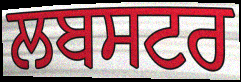
ਲਬਸਟਰ